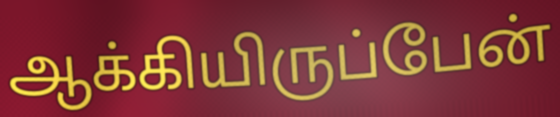
ஆக்கியிருப்பேன்